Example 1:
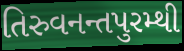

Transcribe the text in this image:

તિરુવનન્તપુરમ્થી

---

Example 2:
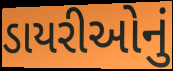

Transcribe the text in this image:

ડાયરીઓનું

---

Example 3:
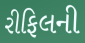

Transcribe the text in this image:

રીફિલની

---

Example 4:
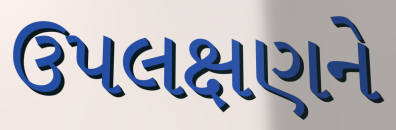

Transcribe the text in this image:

ઉપલક્ષણને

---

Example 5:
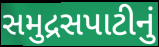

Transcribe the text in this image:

સમુદ્રસપાટીનું